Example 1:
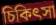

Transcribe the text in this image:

চিকিৎসা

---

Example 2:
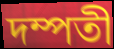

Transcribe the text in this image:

দম্পতী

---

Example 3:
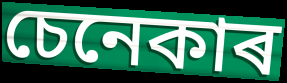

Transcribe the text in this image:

চেনেকাৰ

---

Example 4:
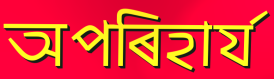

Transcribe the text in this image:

অপৰিহাৰ্য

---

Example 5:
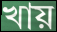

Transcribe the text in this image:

খায়